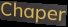
Chaper